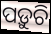
ପଡ଼ୁଚି